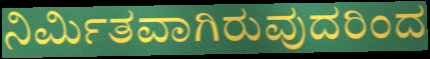
ನಿರ್ಮಿತವಾಗಿರುವುದರಿಂದ